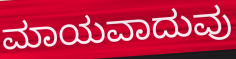
ಮಾಯವಾದುವು